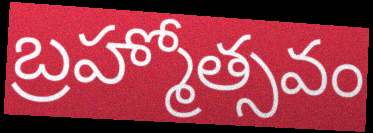
బ్రహ్మోత్సవం